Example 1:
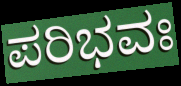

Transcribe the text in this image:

ಪರಿಭವಃ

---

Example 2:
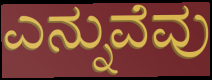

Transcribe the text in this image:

ಎನ್ನುವೆವು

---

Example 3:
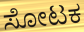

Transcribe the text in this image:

ಸೋಟಕ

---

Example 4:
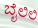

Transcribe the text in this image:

ಬೈಲಿಲಿ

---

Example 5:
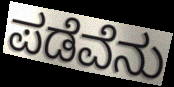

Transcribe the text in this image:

ಪಡೆವೆನು